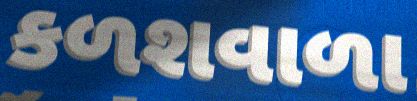
કળશવાળા